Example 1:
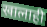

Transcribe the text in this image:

खालाही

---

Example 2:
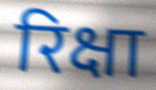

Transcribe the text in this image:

रिक्षा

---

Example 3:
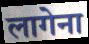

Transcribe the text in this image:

लागेना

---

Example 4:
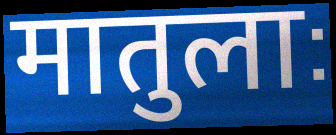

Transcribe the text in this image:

मातुलाः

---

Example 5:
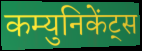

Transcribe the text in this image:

कम्युनिकेंट्स